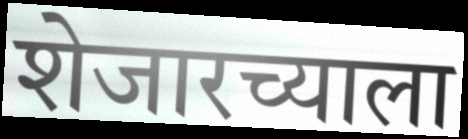
शेजारच्याला